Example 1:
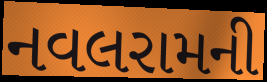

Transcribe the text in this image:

નવલરામની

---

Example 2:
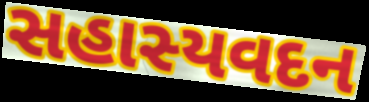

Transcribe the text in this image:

સહાસ્યવદન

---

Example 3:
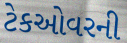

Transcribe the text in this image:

ટેકઓવરની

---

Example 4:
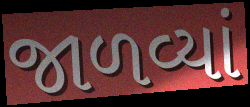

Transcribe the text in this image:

જાળવ્યાં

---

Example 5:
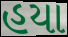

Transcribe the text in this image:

હયા